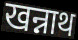
खन्नाथ